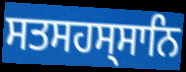
ਸਤਸਹਸ੍ਸਾਨਿ